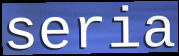
seria